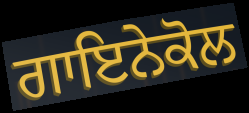
ਗਾਇਨੇਕੋਲ